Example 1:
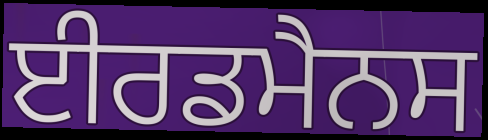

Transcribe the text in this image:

ਈਰਡਮੈਨਸ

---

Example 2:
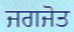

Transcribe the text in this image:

ਜਗਜੋਤ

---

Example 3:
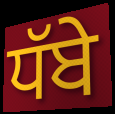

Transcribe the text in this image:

ਧੱਬੇ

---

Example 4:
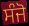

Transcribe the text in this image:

ਸੰਜੋ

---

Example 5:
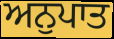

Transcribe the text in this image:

ਅਨੁਪਾਤ